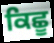
ਕਿਛੂ